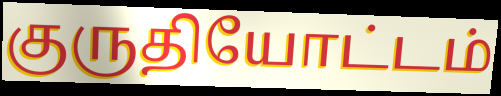
குருதியோட்டம்